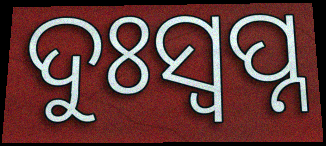
ଦୁଃସ୍ଵପ୍ନ